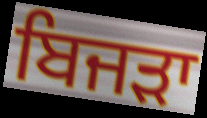
ਬਿਜੜਾ